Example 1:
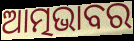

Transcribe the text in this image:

ଆତ୍ମଭାବର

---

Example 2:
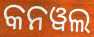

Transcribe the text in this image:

କନୱଲ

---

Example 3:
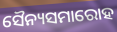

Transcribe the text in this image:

ସୈନ୍ୟସମାରୋହ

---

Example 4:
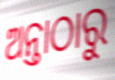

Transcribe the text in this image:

ଅନ୍ତାଠାରୁ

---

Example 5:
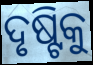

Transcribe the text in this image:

ଦୃଷ୍ଟିକୁ